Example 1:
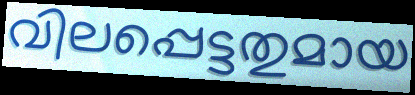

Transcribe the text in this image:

വിലപ്പെട്ടതുമായ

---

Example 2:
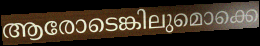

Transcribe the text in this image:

ആരോടെങ്കിലുമൊക്കെ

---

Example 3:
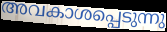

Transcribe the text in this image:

അവകാശപ്പെടുന്നു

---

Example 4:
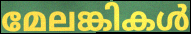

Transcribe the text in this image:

മേലങ്കികൾ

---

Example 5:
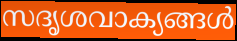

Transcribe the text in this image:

സദൃശവാക്യങ്ങൾ